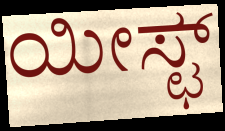
ಯೀಸ್ಟ್